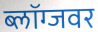
ब्लॉग्जवर